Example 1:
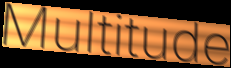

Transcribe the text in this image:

Multitude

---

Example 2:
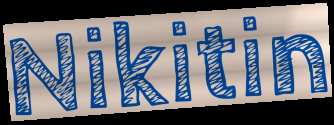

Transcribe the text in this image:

Nikitin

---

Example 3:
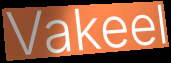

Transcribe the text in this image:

Vakeel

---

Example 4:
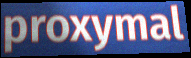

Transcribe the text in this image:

proxymal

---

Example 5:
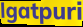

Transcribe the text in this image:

Igatpuri